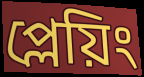
প্লেয়িং